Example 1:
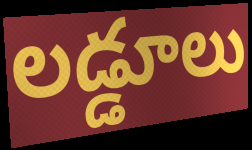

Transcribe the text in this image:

లడ్డూలు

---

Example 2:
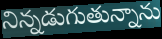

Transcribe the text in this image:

నిన్నడుగుతున్నాను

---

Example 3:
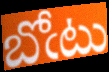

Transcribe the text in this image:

బోఁటు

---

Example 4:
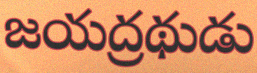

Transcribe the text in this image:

జయద్రథుడు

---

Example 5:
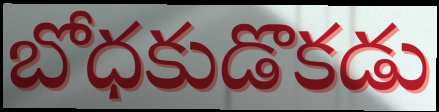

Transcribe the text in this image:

బోధకుడొకడు